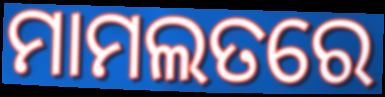
ମାମଲତରେ